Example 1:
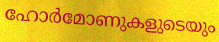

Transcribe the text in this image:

ഹോർമോണുകളുടെയും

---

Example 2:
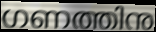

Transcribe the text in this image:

ഗണത്തിനു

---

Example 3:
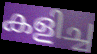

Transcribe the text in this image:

കളിച്ച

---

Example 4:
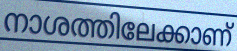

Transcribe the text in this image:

നാശത്തിലേക്കാണ്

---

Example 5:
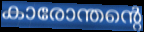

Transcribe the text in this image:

കാരോന്തന്റെ